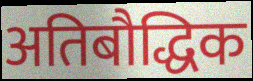
अतिबौद्धिक